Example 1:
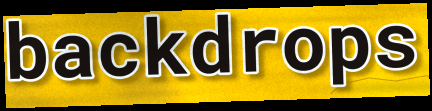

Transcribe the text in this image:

backdrops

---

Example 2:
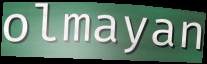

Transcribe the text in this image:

olmayan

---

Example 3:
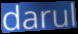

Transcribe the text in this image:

darul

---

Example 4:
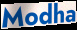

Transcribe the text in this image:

Modha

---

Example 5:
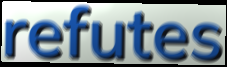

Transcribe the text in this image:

refutes